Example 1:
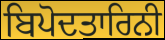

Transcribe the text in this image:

ਬਿਪੋਦਤਾਰਿਨੀ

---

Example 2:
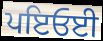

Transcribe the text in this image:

ਪਇਓਈ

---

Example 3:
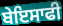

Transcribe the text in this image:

ਬੇਇਸਾਫੀ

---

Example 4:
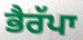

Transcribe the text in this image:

ਭੈਰੱਪਾ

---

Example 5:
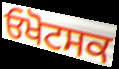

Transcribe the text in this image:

ਓਖੋਟਸਕ